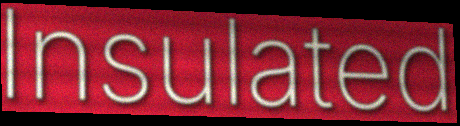
Insulated